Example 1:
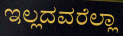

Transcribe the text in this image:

ಇಲ್ಲದವರೆಲ್ಲಾ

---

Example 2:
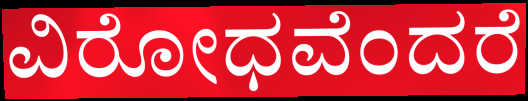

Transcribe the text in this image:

ವಿರೋಧವೆಂದರೆ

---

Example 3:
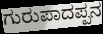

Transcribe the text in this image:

ಗುರುಪಾದಪ್ಪನ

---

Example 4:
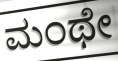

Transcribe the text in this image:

ಮಂಥೇ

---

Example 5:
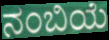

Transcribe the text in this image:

ನಂಬಿಯೆ